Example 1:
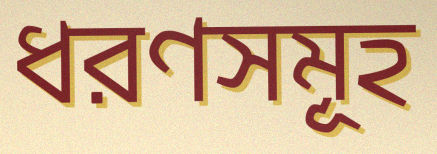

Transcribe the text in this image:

ধরণসমূহ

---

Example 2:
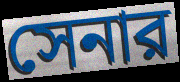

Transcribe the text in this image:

সেনার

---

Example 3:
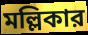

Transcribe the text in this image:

মল্লিকার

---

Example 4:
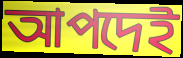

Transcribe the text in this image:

আপদেই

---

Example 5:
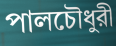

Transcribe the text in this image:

পালচৌধুরী